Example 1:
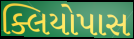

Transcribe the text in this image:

ક્લિયોપાસ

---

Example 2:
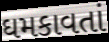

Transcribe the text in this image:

ઘમકાવતાં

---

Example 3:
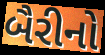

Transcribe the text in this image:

બૈરીનો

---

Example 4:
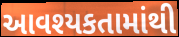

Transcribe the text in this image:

આવશ્યકતામાંથી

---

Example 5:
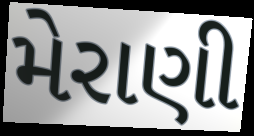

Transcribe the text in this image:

મેરાણી